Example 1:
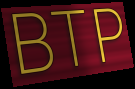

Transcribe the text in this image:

BTP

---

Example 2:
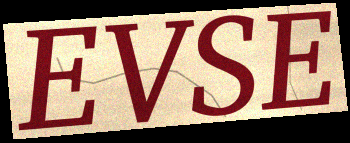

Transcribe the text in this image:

EVSE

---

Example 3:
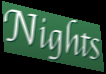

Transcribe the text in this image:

Nights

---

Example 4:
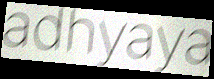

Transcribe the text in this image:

adhyaya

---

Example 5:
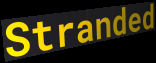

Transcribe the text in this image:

Stranded